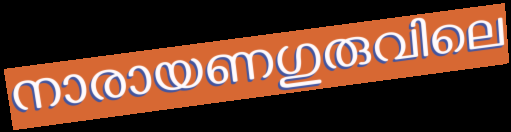
നാരായണഗുരുവിലെ